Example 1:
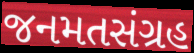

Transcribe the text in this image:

જનમતસંગ્રહ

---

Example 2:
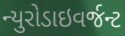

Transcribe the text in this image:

ન્યુરોડાઇવર્જન્ટ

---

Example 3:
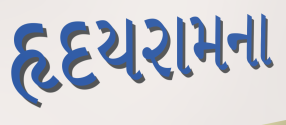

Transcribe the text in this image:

હૃદયરામના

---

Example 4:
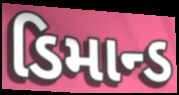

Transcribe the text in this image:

ડિમાન્ડ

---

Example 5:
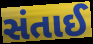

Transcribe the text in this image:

સંતાઈ